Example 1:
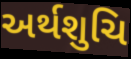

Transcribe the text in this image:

અર્થશુચિ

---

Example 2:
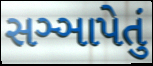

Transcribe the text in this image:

સઞ્ઞાપેતું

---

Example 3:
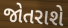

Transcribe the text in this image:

જોતરાશે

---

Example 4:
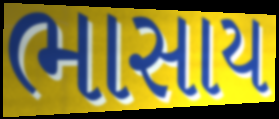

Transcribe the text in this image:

ભાસાય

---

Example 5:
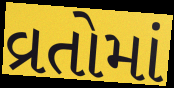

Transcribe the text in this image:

વ્રતોમાં